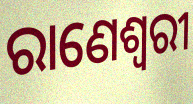
ରାଣେଶ୍ୱରୀ